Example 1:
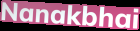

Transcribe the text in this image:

Nanakbhai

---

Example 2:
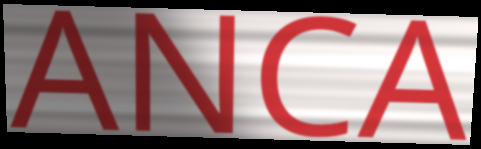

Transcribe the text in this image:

ANCA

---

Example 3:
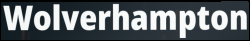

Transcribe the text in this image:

Wolverhampton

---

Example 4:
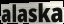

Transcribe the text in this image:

alaska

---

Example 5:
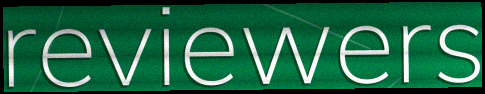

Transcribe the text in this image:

reviewers